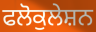
ਫਲੋਕੁਲੇਸ਼ਨ